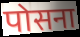
पोसना